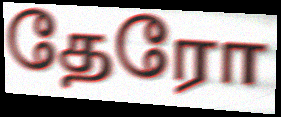
தேரோ